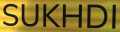
SUKHDI